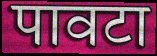
पावटा